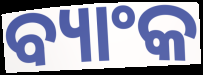
ବ୍ୟାଂକ